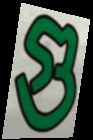
গু